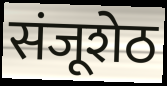
संजूशेठ